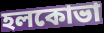
হলকোভা